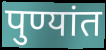
पुण्यांत